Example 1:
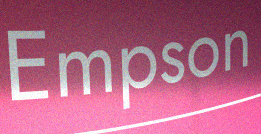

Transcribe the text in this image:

Empson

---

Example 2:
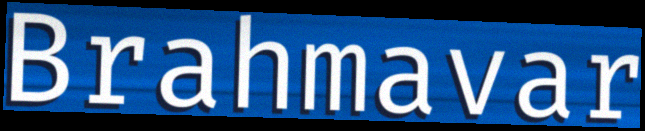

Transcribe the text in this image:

Brahmavar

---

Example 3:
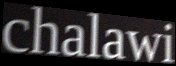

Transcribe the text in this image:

chalawi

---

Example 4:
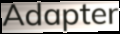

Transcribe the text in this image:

Adapter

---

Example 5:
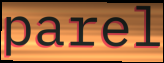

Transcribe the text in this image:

parel